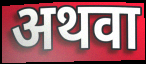
अथवा